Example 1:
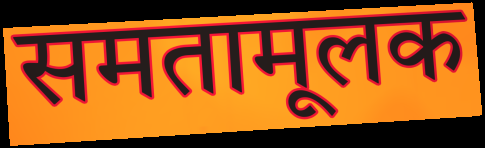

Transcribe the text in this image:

समतामूलक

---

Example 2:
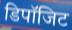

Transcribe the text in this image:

डिपॉजिट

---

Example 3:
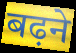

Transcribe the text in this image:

बढ़ने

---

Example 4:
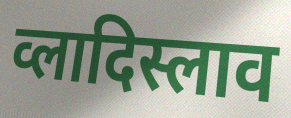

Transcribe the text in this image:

व्लादिस्लाव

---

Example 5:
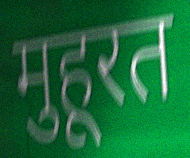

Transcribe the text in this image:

मुहूरत